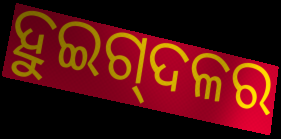
ହୁଇଗ୍‌ଦଳର